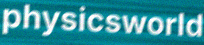
physicsworld